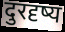
दुरदृष्य